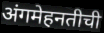
अंगमेहनतीची